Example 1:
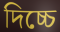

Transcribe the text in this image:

দিচ্চে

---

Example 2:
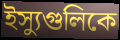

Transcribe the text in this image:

ইস্যুগুলিকে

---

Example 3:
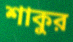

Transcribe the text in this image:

শাকুর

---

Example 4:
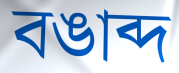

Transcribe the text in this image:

বঙাব্দ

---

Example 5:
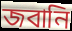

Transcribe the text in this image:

জবানি